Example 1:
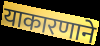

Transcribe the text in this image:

याकारणाने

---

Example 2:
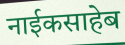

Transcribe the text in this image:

नाईकसाहेब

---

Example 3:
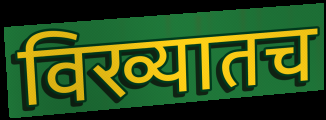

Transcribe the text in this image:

विख्यातच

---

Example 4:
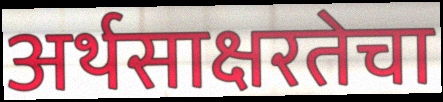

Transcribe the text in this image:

अर्थसाक्षरतेचा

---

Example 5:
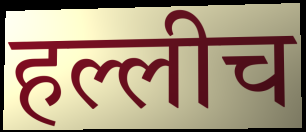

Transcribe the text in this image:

हल्लीच